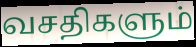
வசதிகளும்